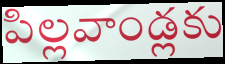
పిల్లవాండ్లకు